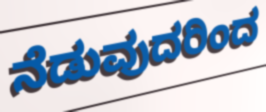
ನೆಡುವುದರಿಂದ